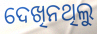
ଦେଖିନଥିଲୁ